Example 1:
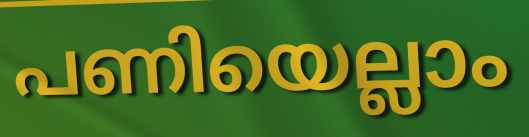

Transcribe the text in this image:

പണിയെല്ലാം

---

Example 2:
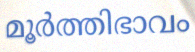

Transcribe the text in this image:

മൂർത്തിഭാവം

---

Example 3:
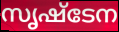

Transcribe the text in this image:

സൃഷ്ടേന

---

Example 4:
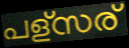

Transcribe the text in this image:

പള്സര്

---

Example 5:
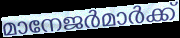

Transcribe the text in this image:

മാനേജർമാർക്ക്